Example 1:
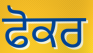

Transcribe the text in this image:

ਫੋਕਰ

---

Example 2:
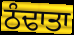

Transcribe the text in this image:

ਠੰਢਾਤਾ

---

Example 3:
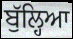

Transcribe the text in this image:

ਬੁੱਲ੍ਹਿਆ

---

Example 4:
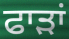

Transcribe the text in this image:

ਫਾੜਾਂ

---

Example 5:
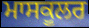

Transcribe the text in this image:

ਮਾਸਕੂਲਰ